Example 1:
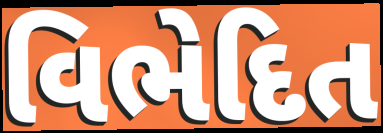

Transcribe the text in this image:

વિભેદિત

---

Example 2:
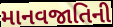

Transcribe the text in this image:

માનવજાતિની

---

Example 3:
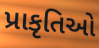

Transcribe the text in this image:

પ્રાકૃતિઓ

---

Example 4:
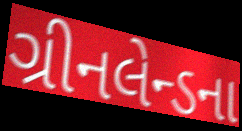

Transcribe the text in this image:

ગ્રીનલેન્ડના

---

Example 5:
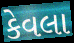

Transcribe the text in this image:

કેવલા